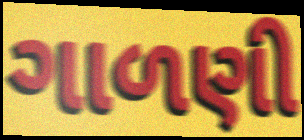
ગાળણી